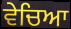
ਵੇਚਿਆ